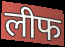
लीफ